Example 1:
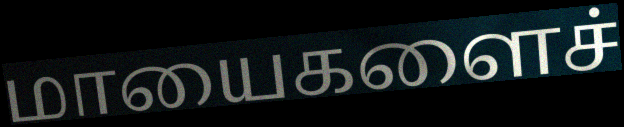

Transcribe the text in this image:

மாயைகளைச்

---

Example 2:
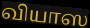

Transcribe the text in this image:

வியாஸ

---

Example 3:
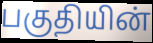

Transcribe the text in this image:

பகுதியின்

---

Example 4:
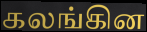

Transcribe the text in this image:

கலங்கின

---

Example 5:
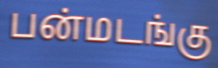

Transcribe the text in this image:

பன்மடங்கு